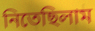
নিতেছিলাম